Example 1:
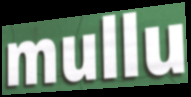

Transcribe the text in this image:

mullu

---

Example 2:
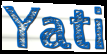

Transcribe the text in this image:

Yati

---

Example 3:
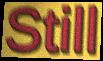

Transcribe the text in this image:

Still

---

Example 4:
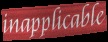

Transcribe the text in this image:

inapplicable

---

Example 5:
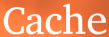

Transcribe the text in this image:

Cache